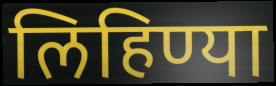
लिहिण्या